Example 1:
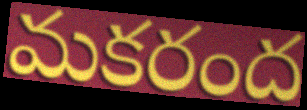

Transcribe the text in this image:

మకరంద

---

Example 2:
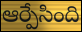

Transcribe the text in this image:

ఆర్పేసింది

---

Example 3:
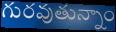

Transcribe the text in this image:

గురవుతున్నాం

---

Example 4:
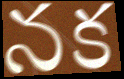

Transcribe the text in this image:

నక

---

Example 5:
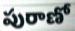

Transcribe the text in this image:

పురాణో